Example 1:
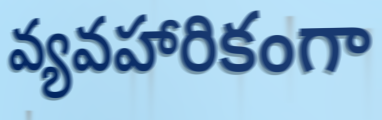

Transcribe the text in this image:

వ్యవహారికంగా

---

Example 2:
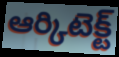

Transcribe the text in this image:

ఆర్కిటెక్ట్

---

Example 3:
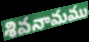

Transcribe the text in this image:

శివనామము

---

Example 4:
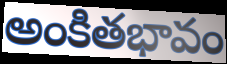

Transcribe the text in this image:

అంకితభావం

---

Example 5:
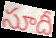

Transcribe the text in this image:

సూదీ